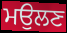
ਮਉਲਣ